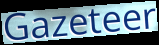
Gazeteer